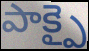
పాక్పై